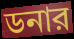
ডনার